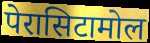
पेरासिटामोल